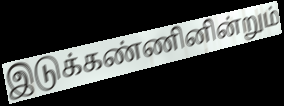
இடுக்கண்ணினின்றும்